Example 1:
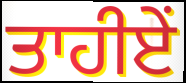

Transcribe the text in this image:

ਤਾਹੀਏਂ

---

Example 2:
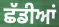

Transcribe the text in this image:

ਛੱਡੀਆਂ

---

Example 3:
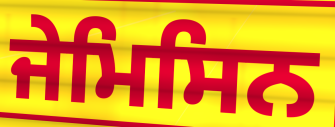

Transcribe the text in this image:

ਜੇਮਿਸਿਨ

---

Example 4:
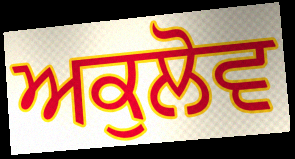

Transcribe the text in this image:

ਅਕੁਲੋਵ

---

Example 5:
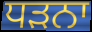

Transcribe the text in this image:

ਧੜਨਾ